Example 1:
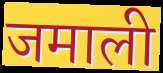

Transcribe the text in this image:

जमाली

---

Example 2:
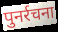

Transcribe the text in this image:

पुनर्रचना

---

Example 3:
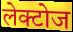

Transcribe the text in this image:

लेक्टोज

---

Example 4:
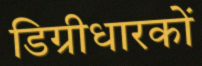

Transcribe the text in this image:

डिग्रीधारकों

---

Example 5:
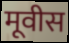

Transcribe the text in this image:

मूवीस